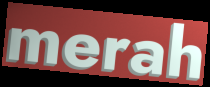
merah